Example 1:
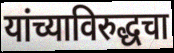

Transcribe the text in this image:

यांच्याविरुद्धचा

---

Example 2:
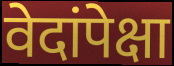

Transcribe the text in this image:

वेदांपेक्षा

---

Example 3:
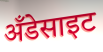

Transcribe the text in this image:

अँडेसाइट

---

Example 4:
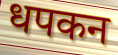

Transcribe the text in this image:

धपकन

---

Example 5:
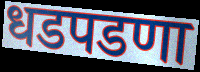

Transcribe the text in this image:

धडपडणा